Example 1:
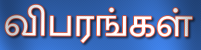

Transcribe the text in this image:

விபரங்கள்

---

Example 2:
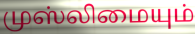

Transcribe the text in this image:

முஸ்லிமையும்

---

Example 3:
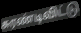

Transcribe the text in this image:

சுரண்டிவிட்டு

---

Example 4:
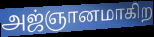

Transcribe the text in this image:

அஜ்ஞானமாகிற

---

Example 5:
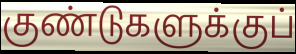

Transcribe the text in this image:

குண்டுகளுக்குப்